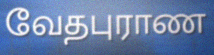
வேதபுராண